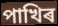
পাখিৰ